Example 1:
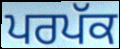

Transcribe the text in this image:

ਪਰਪੱਕ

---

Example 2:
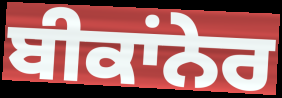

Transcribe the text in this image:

ਬੀਕਾਂਨੇਰ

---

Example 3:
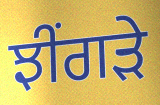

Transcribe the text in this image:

ਝੀਂਗੜੇ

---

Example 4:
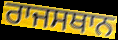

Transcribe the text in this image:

ਰਾਜਸਥਾਨ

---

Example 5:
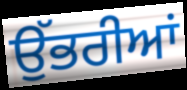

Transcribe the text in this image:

ਉੱਭਰੀਆਂ